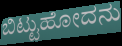
ಬಿಟ್ಟುಹೋದನು